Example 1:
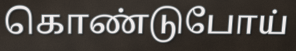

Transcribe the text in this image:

கொண்டுபோய்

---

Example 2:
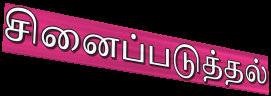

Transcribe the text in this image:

சினைப்படுத்தல்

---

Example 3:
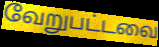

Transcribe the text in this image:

வேறுபட்டவை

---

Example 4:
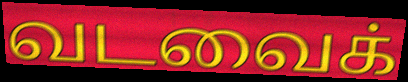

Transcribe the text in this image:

வடவைக்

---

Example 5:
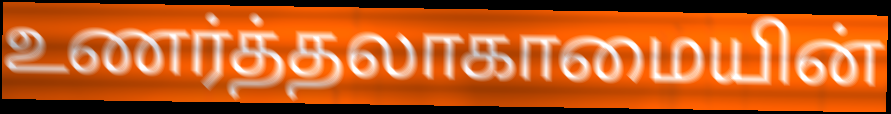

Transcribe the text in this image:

உணர்த்தலாகாமையின்